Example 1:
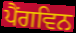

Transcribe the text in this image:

ਪੈਂਗਵਿਨ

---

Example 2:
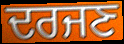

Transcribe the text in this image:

ਦਰਜਣ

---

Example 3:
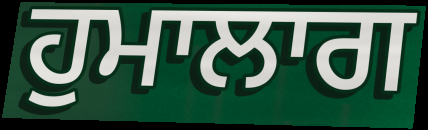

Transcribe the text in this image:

ਹੁਮਾਲਾਗ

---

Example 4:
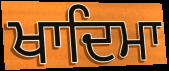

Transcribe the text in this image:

ਖਾਦਿਮਾ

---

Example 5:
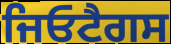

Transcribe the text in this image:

ਜਿਓਟੈਗਸ